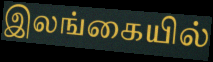
இலங்கையில்